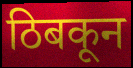
ठिबकून